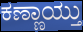
ಕಣ್ಣಾಯ್ತು